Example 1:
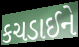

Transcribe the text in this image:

કચડાઈને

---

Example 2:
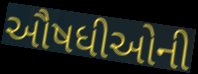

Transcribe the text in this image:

ઔષધીઓની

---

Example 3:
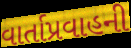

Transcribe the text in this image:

વાર્તાપ્રવાહની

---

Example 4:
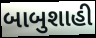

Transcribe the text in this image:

બાબુશાહી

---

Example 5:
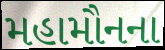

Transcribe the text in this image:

મહામૌનના